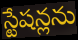
స్టేషన్లను